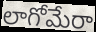
లాగోమేరా